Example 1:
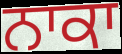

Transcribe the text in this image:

ਨਾਕਾ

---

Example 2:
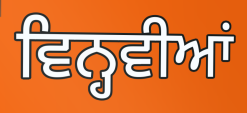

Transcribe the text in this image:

ਵਿਨ੍ਹਵੀਆਂ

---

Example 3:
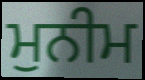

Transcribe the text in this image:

ਮੁਨੀਮ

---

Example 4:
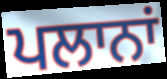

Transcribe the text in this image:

ਪਲਾਨਾਂ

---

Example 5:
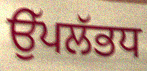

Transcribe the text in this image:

ਉੱਪਲੱਭਧ